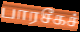
பாரசீகச்